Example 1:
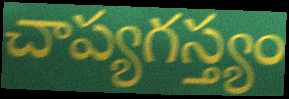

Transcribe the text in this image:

చాప్యగస్త్యం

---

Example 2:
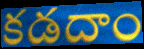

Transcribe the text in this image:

కడదాం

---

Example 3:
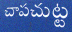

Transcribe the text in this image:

చాపచుట్ట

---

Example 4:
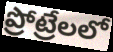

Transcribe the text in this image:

ప్రోట్రేలలో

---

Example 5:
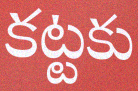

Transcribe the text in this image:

కట్టకు